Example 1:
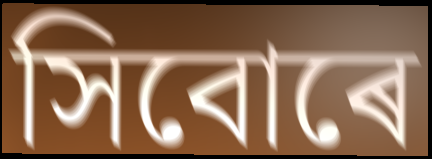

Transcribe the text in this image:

সিবোৰে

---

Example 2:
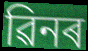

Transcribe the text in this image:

ৱিনৰ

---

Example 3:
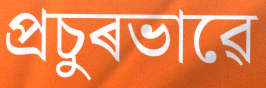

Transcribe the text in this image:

প্ৰচুৰভাৱে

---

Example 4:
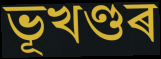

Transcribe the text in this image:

ভূখণ্ডৰ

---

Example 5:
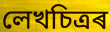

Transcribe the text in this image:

লেখচিত্ৰৰ